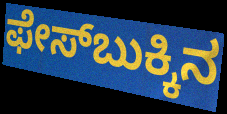
ಫೇಸ್‌ಬುಕ್ಕಿನ